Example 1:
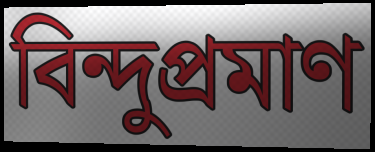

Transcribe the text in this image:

বিন্দুপ্রমাণ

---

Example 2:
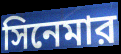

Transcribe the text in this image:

সিনেমার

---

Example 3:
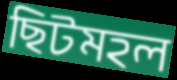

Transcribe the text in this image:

ছিটমহল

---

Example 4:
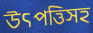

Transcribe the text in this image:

উৎপত্তিসহ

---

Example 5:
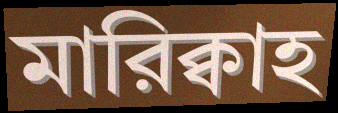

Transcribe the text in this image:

মারিক্বাহ